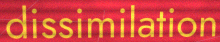
dissimilation